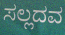
ಸಲ್ಲದವ